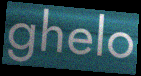
ghelo